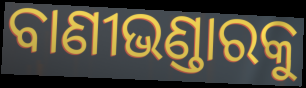
ବାଣୀଭଣ୍ଡାରକୁ